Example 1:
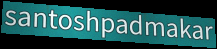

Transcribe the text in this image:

santoshpadmakar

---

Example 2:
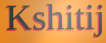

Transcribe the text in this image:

Kshitij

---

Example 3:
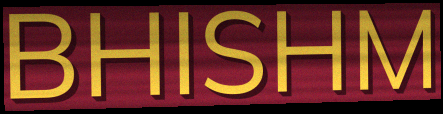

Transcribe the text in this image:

BHISHM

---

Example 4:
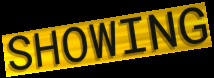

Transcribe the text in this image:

SHOWING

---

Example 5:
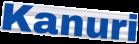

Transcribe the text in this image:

Kanuri